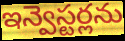
ఇన్వెస్టర్లను